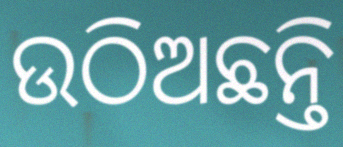
ଉଠିଅଛନ୍ତି